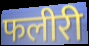
फलीरी